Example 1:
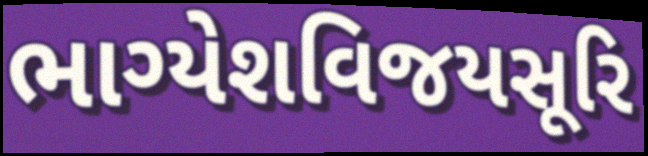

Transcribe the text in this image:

ભાગ્યેશવિજયસૂરિ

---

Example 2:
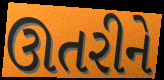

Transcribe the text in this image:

ઊતરીને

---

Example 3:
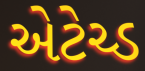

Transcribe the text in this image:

એટેચ્ડ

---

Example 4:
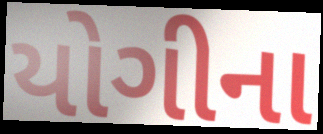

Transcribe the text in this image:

યોગીના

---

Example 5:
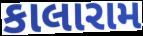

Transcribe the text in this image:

કાલારામ